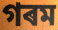
গৰম